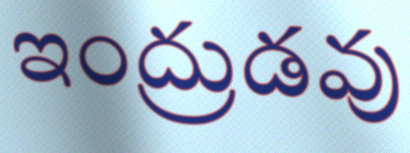
ఇంద్రుడవు